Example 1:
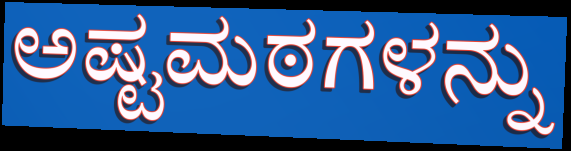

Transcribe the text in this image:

ಅಷ್ಟಮಠಗಳನ್ನು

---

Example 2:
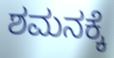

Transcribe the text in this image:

ಶಮನಕ್ಕೆ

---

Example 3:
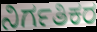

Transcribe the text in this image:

ನಿರ್ಗತಿಕರ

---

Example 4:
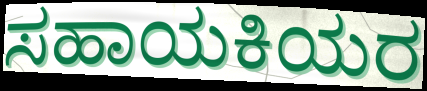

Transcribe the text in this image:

ಸಹಾಯಕಿಯರ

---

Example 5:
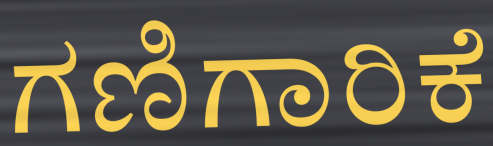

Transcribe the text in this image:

ಗಣಿಗಾರಿಕೆ